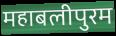
महाबलीपुरम